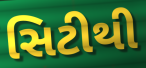
સિટીથી